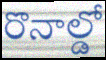
రొనాల్డో